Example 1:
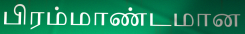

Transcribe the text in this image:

பிரம்மாண்டமான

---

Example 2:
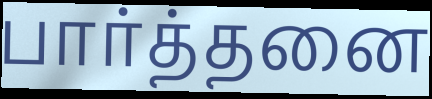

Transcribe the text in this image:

பார்த்தனை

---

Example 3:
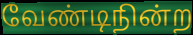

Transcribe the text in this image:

வேண்டிநின்ற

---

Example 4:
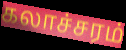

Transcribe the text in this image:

கலாச்சரம்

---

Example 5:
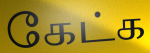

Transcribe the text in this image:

கேட்க